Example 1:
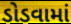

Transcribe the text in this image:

ડોડવામાં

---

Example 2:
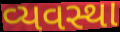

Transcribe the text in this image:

વ્યવસ્થા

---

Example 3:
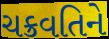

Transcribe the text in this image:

ચક્રવતિને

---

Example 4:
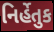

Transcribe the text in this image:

નિર્હેતુક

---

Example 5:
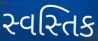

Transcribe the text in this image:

સ્વસ્તિક